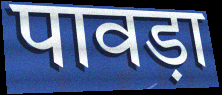
पावड़ा